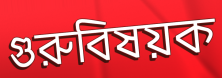
গুরুবিষয়ক